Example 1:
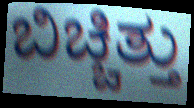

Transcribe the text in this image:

ಬಿಚ್ಚಿತ್ತು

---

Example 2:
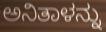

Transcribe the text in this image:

ಅನಿತಾಳನ್ನು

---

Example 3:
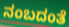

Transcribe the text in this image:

ನಂಬದಂತೆ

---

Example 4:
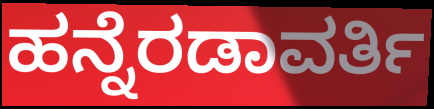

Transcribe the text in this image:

ಹನ್ನೆರಡಾವರ್ತಿ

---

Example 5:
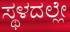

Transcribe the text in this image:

ಸ್ಥಳದಲ್ಲೇ